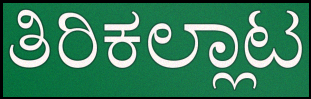
ತಿರಿಕಲ್ಲಾಟ